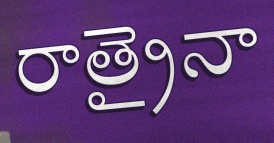
రాత్రైనా